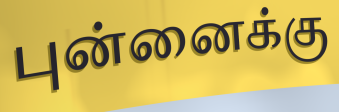
புன்னைக்கு